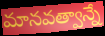
మానవత్వాన్నే